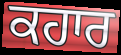
ਕਹਾਰ